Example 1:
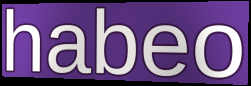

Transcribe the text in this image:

habeo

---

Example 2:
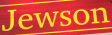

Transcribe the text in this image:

Jewson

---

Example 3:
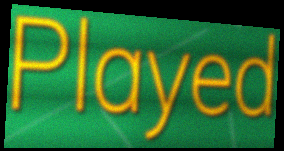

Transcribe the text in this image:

Played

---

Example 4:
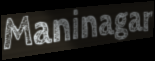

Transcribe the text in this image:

Maninagar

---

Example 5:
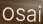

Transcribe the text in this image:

osai